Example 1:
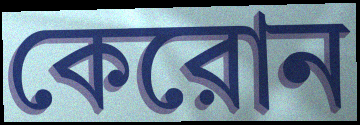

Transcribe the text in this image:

কেরোন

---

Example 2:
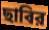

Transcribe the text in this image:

ছাবির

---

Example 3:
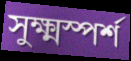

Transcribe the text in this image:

সুক্ষ্মস্পর্শ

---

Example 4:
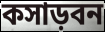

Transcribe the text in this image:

কসাড়বন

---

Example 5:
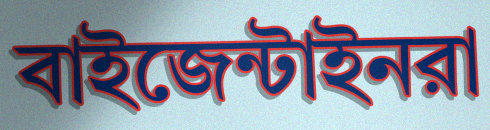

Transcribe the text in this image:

বাইজেন্টাইনরা